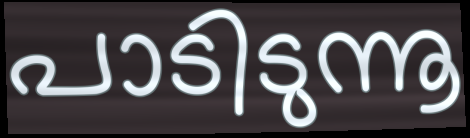
പാടിടുന്നൂ